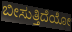
ಬೀಸುತ್ತಿದೆಯೋ